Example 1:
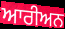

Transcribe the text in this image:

ਆਰੀਅਨ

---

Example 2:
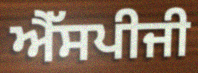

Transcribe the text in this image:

ਐੱਸਪੀਜੀ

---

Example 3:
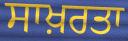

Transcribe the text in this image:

ਸਾਖ਼ਰਤਾ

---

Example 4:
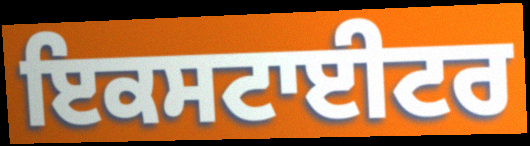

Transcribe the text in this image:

ਇਕਸਟਾਈਟਰ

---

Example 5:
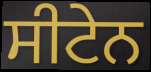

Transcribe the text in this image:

ਸੀਟੇਨ